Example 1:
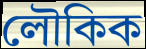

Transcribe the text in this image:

লৌকিক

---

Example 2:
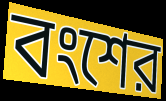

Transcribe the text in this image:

বংশের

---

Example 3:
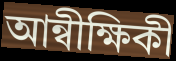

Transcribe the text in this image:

আন্বীক্ষিকী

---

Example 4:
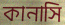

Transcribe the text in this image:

কানাসি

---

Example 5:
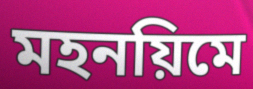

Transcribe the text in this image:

মহনয়িমে